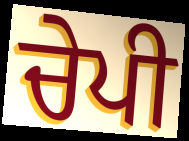
ਚੇਪੀ